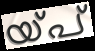
യ്പ്